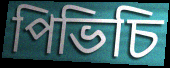
পিভিচি